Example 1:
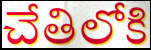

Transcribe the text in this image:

చేతిలోకి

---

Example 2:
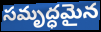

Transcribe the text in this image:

సమృద్ధమైన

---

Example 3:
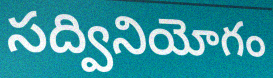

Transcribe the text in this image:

సద్వినియోగం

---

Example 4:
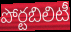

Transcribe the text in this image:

పోర్టబిలిటీ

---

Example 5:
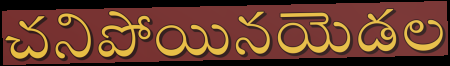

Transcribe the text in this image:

చనిపోయినయెడల